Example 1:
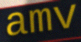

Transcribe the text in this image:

amv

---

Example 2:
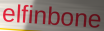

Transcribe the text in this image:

elfinbone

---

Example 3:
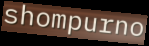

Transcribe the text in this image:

shompurno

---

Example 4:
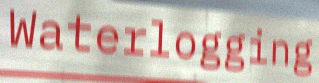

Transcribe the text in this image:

Waterlogging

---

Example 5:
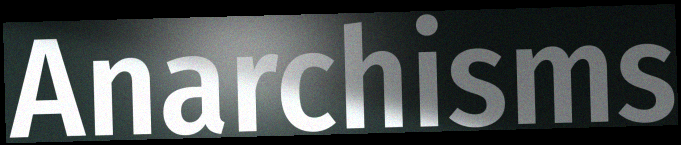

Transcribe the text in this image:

Anarchisms